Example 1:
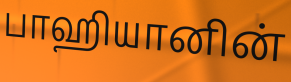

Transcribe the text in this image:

பாஹியானின்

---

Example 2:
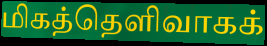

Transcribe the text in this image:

மிகத்தெளிவாகக்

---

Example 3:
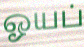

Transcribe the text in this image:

ஓயப்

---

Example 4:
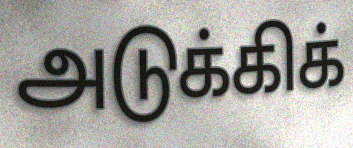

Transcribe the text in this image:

அடுக்கிக்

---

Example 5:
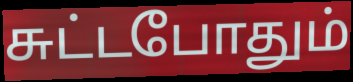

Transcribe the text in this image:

சுட்டபோதும்